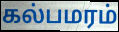
கல்பமரம்